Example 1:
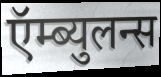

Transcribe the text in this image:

ऍम्ब्युलन्स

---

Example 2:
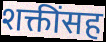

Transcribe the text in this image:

शक्तींसह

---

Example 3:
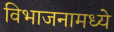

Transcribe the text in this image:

विभाजनामध्ये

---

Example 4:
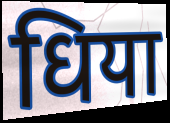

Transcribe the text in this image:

धिया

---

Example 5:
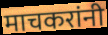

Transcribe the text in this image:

माचकरांनी